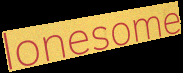
lonesome